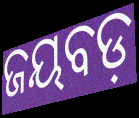
ଜୟବଡ଼